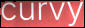
curvy